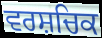
ਵਰਸ਼ਚਿਕ